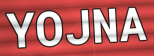
YOJNA